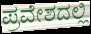
ಪ್ರವೇಶದಲ್ಲಿ